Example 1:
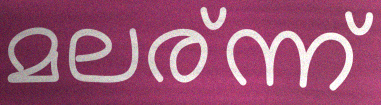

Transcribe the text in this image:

മലര്ന്ന്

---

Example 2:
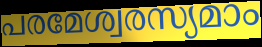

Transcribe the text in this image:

പരമേശ്വരസ്യമാം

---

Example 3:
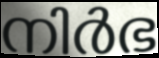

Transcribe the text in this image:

നിർഭ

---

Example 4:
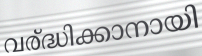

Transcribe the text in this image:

വര്ദ്ധിക്കാനായി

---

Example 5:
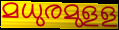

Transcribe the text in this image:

മധുരമുളള